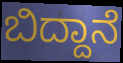
ಬಿದ್ದಾನೆ